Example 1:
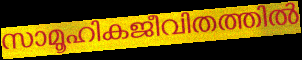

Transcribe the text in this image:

സാമൂഹികജീവിതത്തിൽ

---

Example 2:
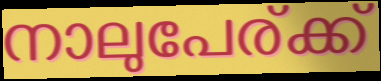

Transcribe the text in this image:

നാലുപേര്ക്ക്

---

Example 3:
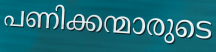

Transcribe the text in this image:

പണിക്കന്മാരുടെ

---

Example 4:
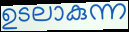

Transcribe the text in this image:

ഉടലാകുന്ന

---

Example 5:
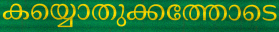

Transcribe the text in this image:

കയ്യൊതുക്കത്തോടെ